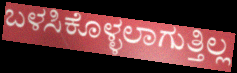
ಬಳಸಿಕೊಳ್ಳಲಾಗುತ್ತಿಲ್ಲ